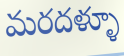
మరదళ్ళూ